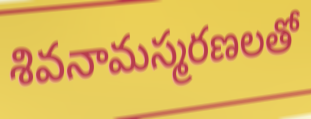
శివనామస్మరణలతో